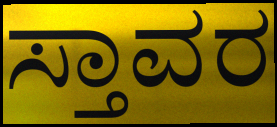
ಸ್ತಾವರ